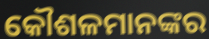
କୌଶଳମାନଙ୍କର